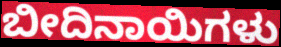
ಬೀದಿನಾಯಿಗಳು